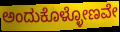
ಅಂದುಕೊಳ್ಳೋಣವೇ